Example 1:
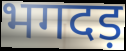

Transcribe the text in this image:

भगदड़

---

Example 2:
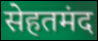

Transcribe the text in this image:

सेहतमंद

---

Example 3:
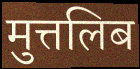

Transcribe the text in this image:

मुत्तलिब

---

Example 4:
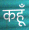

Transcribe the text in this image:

कहूँ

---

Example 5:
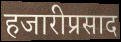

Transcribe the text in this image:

हजारीप्रसाद